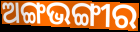
ଅଙ୍ଗଭଙ୍ଗୀର